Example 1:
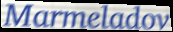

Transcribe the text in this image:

Marmeladov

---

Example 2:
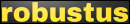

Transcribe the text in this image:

robustus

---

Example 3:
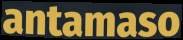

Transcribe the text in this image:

antamaso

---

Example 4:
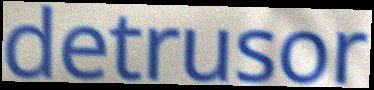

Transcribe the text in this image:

detrusor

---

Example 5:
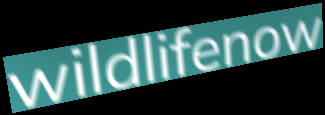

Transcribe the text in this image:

wildlifenow